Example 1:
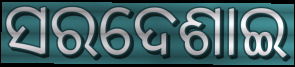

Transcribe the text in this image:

ସରଦେଶାଇ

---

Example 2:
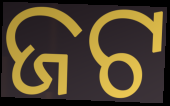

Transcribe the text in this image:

ଜଟ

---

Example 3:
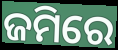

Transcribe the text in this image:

ଜମିରେ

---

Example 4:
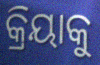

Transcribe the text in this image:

କ୍ରିୟାକୁ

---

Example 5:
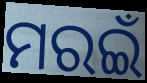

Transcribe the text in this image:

ମରଇଁ